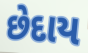
છેદાય